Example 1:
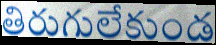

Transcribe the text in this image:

తిరుగులేకుండ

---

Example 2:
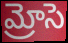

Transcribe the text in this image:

మ్రోసె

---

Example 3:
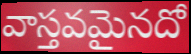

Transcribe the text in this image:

వాస్తవమైనదో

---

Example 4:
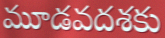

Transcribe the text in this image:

మూడవదశకు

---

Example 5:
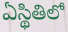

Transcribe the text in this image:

ఏస్థితిలో